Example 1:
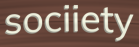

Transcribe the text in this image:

sociiety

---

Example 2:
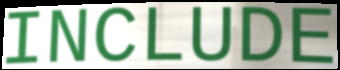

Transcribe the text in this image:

INCLUDE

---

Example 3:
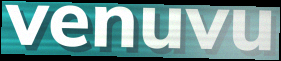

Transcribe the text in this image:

venuvu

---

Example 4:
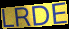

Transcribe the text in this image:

LRDE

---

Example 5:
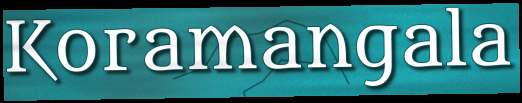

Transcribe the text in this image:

Koramangala